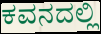
ಕವನದಲ್ಲಿ